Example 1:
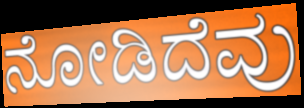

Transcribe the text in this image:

ನೋಡಿದೆವು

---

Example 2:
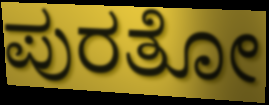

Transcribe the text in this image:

ಪುರತೋ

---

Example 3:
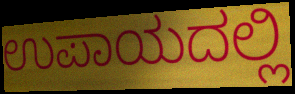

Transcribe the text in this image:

ಉಪಾಯದಲ್ಲಿ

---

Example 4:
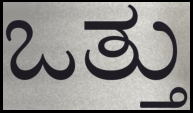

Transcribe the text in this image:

ಒತ್ತು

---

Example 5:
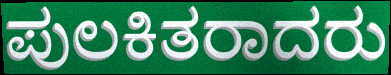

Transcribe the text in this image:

ಪುಲಕಿತರಾದರು